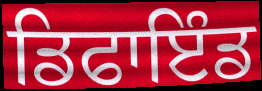
ਡਿਫਾਇੰਡ